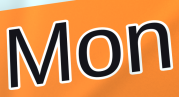
Mon